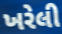
ખરેલી